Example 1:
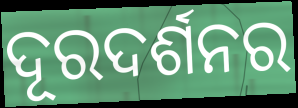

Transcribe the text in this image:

ଦୂରଦର୍ଶନର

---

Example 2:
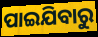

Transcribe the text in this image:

ପାଇଯିବାରୁ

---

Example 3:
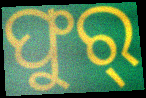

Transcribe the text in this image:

ଫୁର୍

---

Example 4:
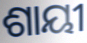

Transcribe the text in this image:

ଶାୟୀ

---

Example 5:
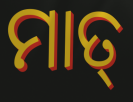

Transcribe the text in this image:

ମାତ୍